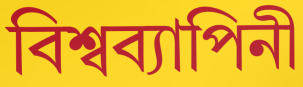
বিশ্বব্যাপিনী